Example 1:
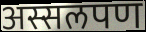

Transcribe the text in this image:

अस्सलपण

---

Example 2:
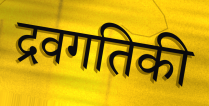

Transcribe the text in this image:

द्रवगतिकी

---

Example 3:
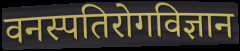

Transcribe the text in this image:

वनस्पतिरोगविज्ञान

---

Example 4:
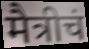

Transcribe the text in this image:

मैत्रीचं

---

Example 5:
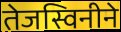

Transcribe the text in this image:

तेजस्विनीने